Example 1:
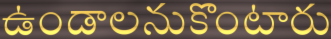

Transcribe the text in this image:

ఉండాలనుకొంటారు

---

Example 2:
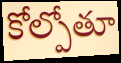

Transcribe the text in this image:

కోల్పోతూ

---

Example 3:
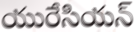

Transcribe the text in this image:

యురేసియన్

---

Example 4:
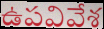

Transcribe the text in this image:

ఉపవివేశ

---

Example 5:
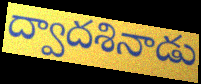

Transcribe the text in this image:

ద్వాదశినాడు